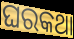
ଘରକଥା